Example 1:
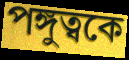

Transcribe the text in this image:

পঙ্গুত্বকে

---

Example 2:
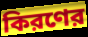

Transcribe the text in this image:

কিরণের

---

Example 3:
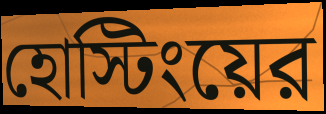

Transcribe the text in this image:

হোস্টিংয়ের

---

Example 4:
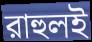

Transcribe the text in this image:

রাহুলই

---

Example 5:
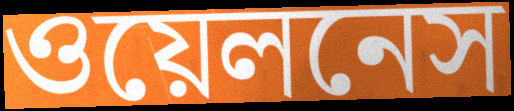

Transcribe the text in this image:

ওয়েলনেস